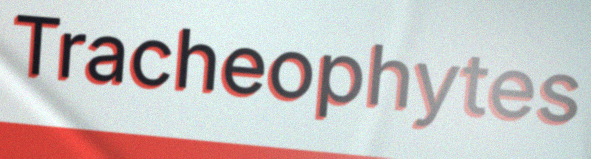
Tracheophytes